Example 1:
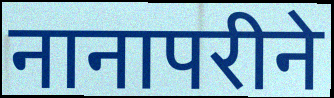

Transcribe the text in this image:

नानापरीने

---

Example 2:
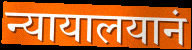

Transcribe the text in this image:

न्यायालयानं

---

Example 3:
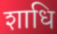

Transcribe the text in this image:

शाधि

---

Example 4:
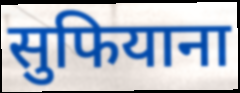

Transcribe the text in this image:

सुफियाना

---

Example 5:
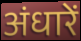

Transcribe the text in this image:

अंधारें